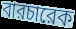
বারচারেক